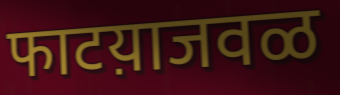
फाटय़ाजवळ